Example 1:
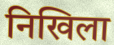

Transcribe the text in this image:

निखिला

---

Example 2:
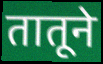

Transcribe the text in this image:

तातूने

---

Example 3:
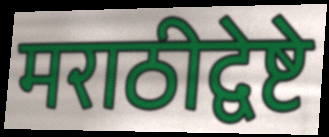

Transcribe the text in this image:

मराठीद्वेष्टे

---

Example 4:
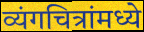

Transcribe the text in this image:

व्यंगचित्रांमध्ये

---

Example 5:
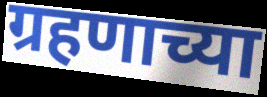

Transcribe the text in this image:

ग्रहणाच्या